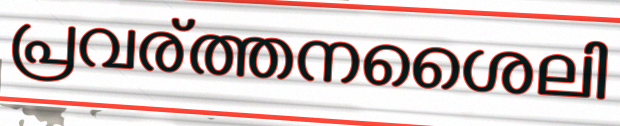
പ്രവര്ത്തനശൈലി